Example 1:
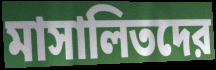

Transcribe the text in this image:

মাসালিতদের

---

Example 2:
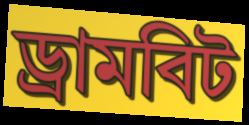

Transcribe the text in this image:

ড্রামবিট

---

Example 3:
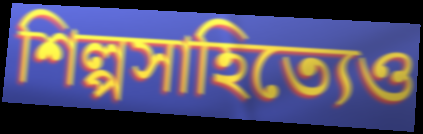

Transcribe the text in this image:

শিল্পসাহিত্যেও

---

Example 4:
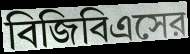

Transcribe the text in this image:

বিজিবিএসের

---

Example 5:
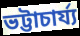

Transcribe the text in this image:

ভট্টাচার্য্য